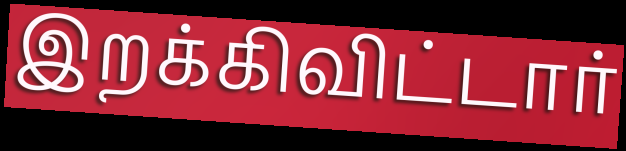
இறக்கிவிட்டார்